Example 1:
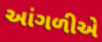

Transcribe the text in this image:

આંગળીએ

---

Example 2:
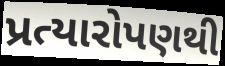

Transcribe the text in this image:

પ્રત્યારોપણથી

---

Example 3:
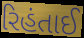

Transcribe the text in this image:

રિહંતાઈ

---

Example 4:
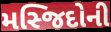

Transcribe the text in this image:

મસ્જિદોની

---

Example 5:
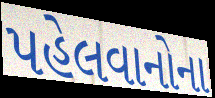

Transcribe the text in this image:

પહેલવાનોના